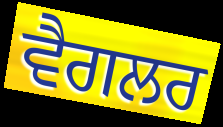
ਵੈਗਲਰ